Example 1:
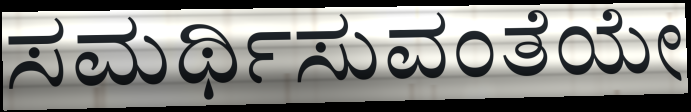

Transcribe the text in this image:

ಸಮರ್ಥಿಸುವಂತೆಯೇ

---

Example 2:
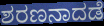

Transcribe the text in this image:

ಶರಣನಾದಡೆ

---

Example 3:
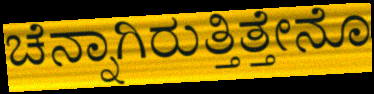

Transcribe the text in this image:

ಚೆನ್ನಾಗಿರುತ್ತಿತ್ತೇನೊ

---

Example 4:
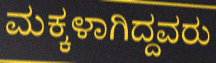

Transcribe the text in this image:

ಮಕ್ಕಳಾಗಿದ್ದವರು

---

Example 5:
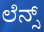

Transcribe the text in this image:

ಲೆನ್ಸ್